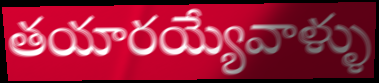
తయారయ్యేవాళ్ళు